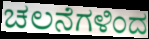
ಚಲನೆಗಳಿಂದ